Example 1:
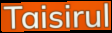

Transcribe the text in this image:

Taisirul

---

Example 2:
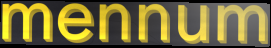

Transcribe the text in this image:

mennum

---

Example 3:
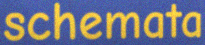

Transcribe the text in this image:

schemata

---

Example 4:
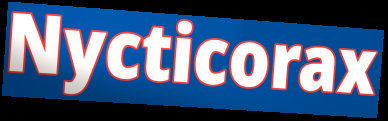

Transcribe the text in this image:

Nycticorax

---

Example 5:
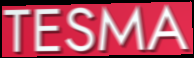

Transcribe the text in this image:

TESMA